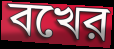
বখের